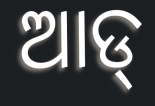
ଆଡ୍